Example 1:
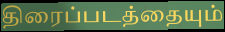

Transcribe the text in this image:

திரைப்படத்தையும்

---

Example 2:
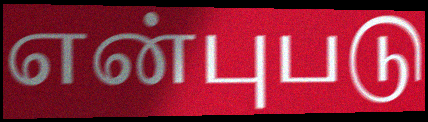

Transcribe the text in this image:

என்புபடு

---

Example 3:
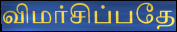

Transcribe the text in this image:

விமர்சிப்பதே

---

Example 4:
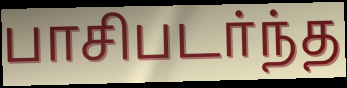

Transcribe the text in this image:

பாசிபடர்ந்த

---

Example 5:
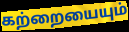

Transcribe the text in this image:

கற்றையையும்